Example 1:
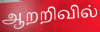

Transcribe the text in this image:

ஆறறிவில்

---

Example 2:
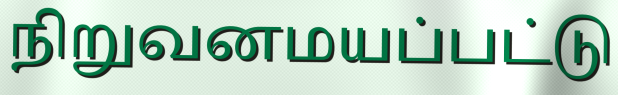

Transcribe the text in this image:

நிறுவனமயப்பட்டு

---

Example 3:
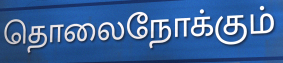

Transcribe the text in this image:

தொலைநோக்கும்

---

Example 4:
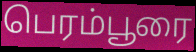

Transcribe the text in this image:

பெரம்பூரை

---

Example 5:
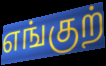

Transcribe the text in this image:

எங்குற்